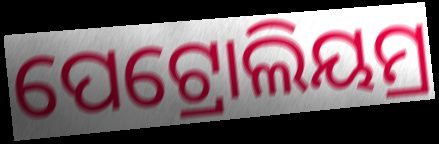
ପେଟ୍ରୋଲିୟମ୍ର